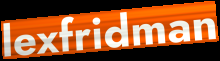
lexfridman